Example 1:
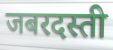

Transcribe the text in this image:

जबरदस्ती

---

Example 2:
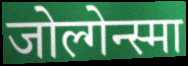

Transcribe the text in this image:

जोल्गेन्स्मा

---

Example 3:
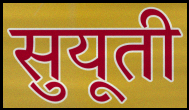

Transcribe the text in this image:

सुयूती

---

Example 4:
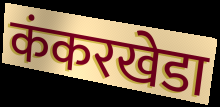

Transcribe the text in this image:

कंकरखेडा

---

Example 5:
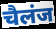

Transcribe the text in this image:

चैलंज